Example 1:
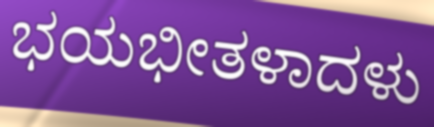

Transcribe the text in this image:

ಭಯಭೀತಳಾದಳು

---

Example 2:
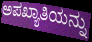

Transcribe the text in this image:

ಅಪಖ್ಯಾತಿಯನ್ನು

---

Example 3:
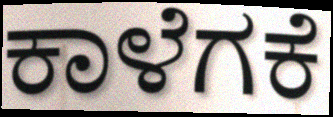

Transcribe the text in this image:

ಕಾಳೆಗಕೆ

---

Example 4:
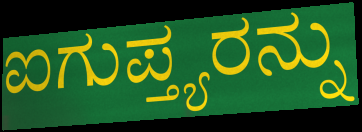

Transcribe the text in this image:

ಐಗುಪ್ತ್ಯರನ್ನು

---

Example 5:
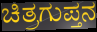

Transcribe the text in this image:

ಚಿತ್ರಗುಪ್ತನ